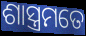
ଶାସ୍ତ୍ରମତେ